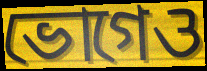
ভোগেও